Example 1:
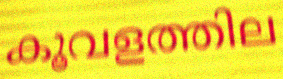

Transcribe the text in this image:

കൂവളത്തില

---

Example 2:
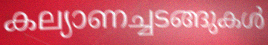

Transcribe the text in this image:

കല്യാണച്ചടങ്ങുകൾ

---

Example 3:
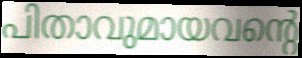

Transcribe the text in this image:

പിതാവുമായവന്റെ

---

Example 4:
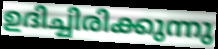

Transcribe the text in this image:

ഉദിച്ചിരിക്കുന്നു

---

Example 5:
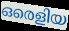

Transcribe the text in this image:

ഒരെളിയ